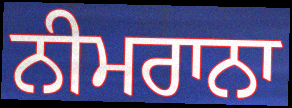
ਨੀਮਰਾਨਾ